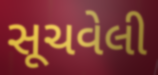
સૂચવેલી